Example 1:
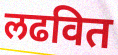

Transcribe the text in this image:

लढवित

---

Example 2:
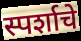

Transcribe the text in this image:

स्पर्शाचे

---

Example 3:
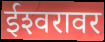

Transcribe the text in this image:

ईश्‍वरावर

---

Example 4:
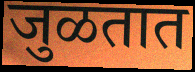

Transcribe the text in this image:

जुळतात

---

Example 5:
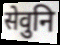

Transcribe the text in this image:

सेवुनि